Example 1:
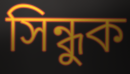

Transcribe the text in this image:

সিন্ধুক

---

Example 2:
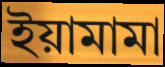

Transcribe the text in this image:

ইয়ামামা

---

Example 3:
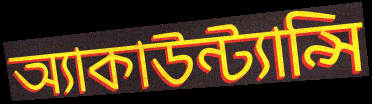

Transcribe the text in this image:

অ্যাকাউন্ট্যান্সি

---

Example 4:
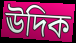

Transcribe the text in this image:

ঊদিক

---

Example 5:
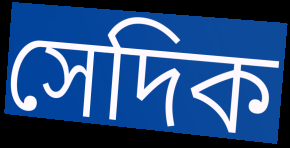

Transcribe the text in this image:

সেদিক